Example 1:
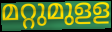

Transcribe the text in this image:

മറ്റുമുളള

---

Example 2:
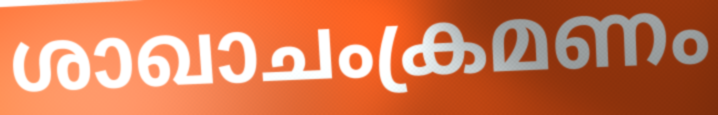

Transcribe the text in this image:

ശാഖാചംക്രമണം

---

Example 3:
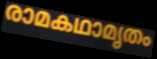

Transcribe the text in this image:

രാമകഥാമൃതം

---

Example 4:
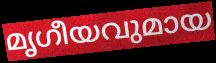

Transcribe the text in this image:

മൃഗീയവുമായ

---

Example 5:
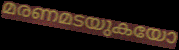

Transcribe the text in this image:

മരണമടയുകയോ